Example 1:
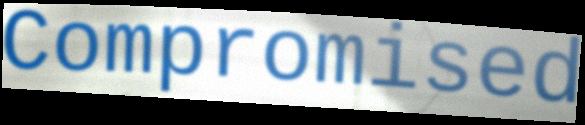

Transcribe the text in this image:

Compromised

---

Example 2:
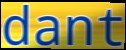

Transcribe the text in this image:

dant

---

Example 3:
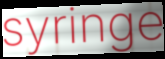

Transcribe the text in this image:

syringe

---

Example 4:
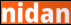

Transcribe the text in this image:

nidan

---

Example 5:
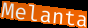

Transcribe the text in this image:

Melanta